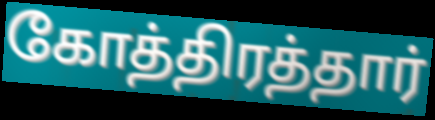
கோத்திரத்தார்